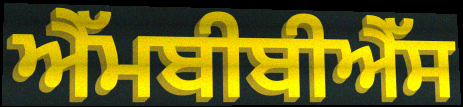
ਐੱਮਬੀਬੀਐੱਸ